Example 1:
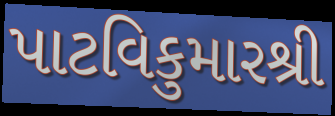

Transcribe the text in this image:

પાટવિકુમારશ્રી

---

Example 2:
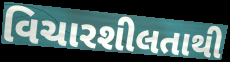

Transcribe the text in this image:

વિચારશીલતાથી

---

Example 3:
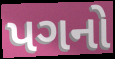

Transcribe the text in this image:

પગનો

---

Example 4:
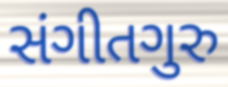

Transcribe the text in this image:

સંગીતગુરુ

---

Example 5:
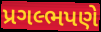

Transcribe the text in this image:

પ્રગલ્ભપણે